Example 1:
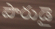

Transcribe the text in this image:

పౌరుడై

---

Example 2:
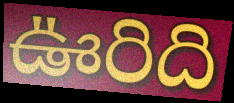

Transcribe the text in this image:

ఊరిది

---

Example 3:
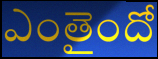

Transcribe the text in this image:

ఎంతైందో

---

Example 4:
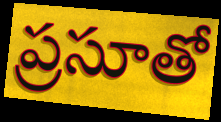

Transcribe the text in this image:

ప్రసూతో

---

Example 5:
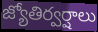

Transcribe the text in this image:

జ్యోతిర్వర్షాలు